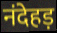
नंदेहड़